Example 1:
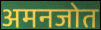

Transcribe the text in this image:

अमनजोत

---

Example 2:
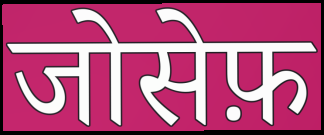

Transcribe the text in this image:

जोसेफ़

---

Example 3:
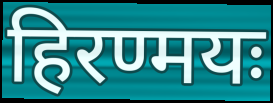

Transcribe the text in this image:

हिरण्मयः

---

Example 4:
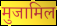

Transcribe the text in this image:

मुजामिल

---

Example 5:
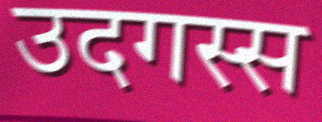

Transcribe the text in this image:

उदगस्स